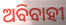
ଅବିବାହୀ